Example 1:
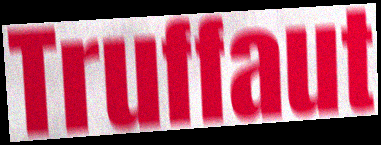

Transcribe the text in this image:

Truffaut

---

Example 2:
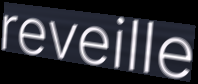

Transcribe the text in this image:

reveille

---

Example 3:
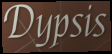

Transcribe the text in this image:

Dypsis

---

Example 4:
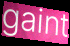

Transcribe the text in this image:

gaint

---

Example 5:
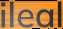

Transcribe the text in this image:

ileal